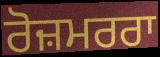
ਰੋਜ਼ਮਰਰਾ